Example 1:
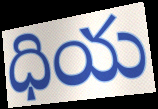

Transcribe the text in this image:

ధియ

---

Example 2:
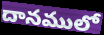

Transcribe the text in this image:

దానములో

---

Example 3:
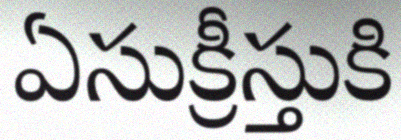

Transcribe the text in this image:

ఏసుక్రీస్తుకి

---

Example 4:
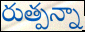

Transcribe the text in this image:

రుత్పన్నా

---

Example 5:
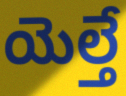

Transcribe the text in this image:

యెల్తే